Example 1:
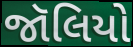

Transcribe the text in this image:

જૉલિયો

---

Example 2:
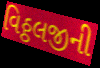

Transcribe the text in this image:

વિઠ્ઠલજીની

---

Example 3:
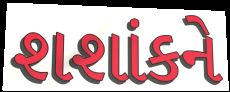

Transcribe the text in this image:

શશાંકને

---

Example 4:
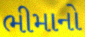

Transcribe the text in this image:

ભીમાનો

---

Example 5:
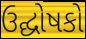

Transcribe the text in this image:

ઉદ્ઘોષકો